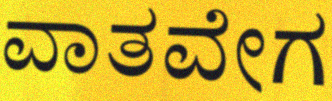
ವಾತವೇಗ